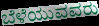
ಬೆಳೆಯುವವರು